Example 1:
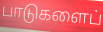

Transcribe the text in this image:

பாடுகளைப்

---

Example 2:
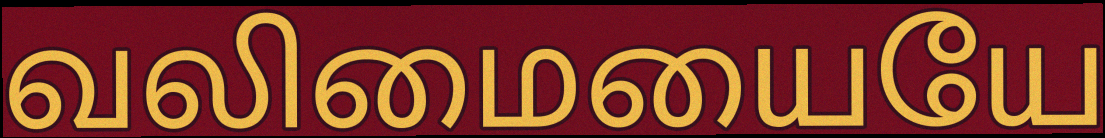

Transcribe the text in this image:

வலிமையையே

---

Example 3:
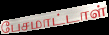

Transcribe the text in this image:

பேசமாட்டாள்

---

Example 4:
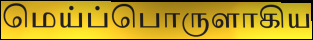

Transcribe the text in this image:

மெய்ப்பொருளாகிய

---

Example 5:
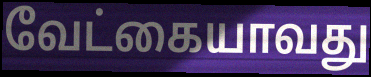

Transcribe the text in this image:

வேட்கையாவது